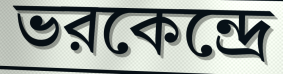
ভরকেন্দ্রে